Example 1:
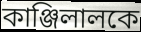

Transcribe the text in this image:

কাঞ্জিলালকে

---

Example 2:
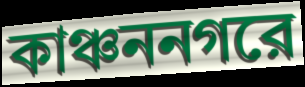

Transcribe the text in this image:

কাঞ্চননগরে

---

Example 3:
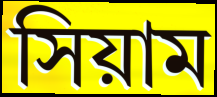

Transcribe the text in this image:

সিয়াম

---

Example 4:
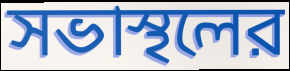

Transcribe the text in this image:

সভাস্থলের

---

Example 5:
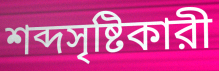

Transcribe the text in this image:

শব্দসৃষ্টিকারী